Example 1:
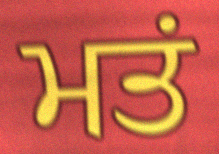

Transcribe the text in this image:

ਮਤਂ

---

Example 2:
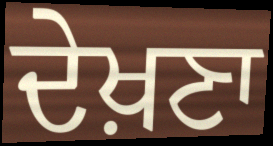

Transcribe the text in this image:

ਦੇਖ਼ਣਾ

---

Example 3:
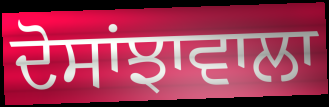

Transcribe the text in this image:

ਦੋਸਾਂਝਾਵਾਲਾ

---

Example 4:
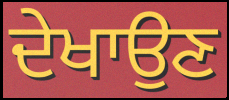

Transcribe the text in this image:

ਦੇਖਾਉਣ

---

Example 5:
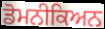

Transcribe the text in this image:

ਡੋਮਨੀਕਿਅਨ